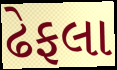
ઢેફલા